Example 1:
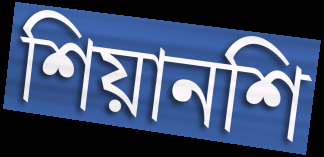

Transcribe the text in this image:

শিয়ানশি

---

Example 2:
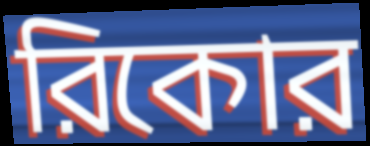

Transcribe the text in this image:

রিকোর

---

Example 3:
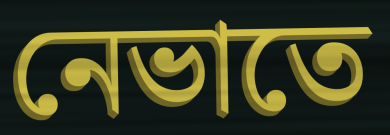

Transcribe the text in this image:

নেভাতে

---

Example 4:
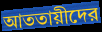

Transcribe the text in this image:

আততায়ীদের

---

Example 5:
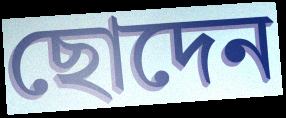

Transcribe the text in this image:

ছোদেন